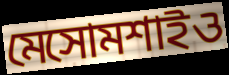
মেসোমশাইও